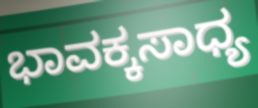
ಭಾವಕ್ಕಸಾಧ್ಯ